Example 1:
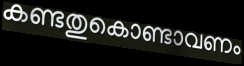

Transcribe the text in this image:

കണ്ടതുകൊണ്ടാവണം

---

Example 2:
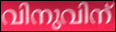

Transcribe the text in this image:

വിനുവിന്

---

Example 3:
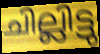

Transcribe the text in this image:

ചില്ലിട്ടു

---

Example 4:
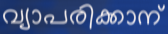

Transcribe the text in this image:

വ്യാപരിക്കാന്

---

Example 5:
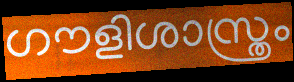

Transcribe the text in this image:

ഗൗളിശാസ്ത്രം